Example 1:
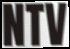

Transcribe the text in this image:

NTV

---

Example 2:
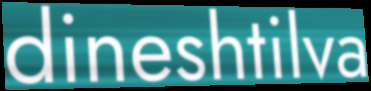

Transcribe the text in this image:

dineshtilva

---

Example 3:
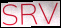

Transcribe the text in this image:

SRV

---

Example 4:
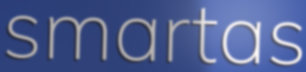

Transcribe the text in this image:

smartas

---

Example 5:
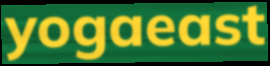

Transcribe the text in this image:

yogaeast